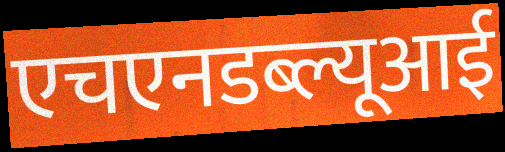
एचएनडब्ल्यूआई